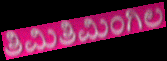
ತಿಮಿತಿಮಿಂಗಿಲ